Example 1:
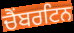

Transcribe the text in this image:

ਚੈਂਬਰਟਿਨ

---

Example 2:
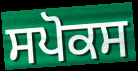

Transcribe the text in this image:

ਸਪੋਕਸ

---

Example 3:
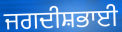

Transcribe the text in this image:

ਜਗਦੀਸ਼ਭਾਈ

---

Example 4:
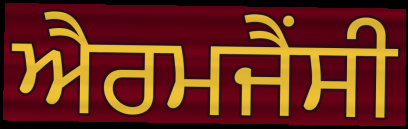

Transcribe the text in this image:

ਐਰਮਜੈਂਸੀ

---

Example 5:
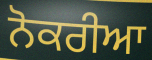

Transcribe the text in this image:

ਨੋਕਰੀਆ